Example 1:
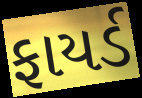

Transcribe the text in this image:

ફાયર્ડ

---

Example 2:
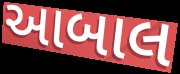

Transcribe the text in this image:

આબાલ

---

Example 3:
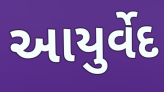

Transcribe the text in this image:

આયુર્વેદ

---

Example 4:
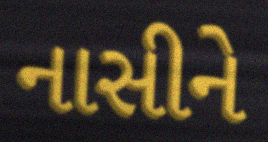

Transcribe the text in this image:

નાસીને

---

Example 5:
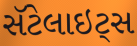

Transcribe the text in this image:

સૅટેલાઇટ્સ